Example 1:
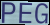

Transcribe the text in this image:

PEG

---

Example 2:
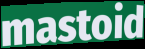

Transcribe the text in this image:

mastoid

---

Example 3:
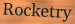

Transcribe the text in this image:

Rocketry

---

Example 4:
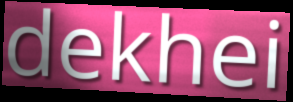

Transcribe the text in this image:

dekhei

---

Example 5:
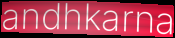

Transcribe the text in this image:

andhkarna